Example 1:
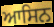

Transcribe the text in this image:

ਆਸਿਨ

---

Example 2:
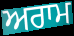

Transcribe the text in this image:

ਅਰਾਮ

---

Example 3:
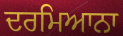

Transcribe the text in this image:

ਦਰਮਿਆਨਾ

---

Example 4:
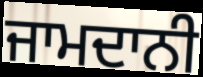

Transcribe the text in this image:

ਜਾਮਦਾਨੀ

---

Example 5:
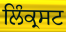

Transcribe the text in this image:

ਲਿੰਕ੍ਰਸਟ